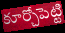
కూర్చోపెట్టి